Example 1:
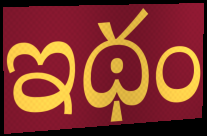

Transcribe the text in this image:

ఇథం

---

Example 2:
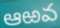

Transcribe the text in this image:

ఆఱవ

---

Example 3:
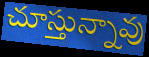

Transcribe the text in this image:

చూస్తున్నావు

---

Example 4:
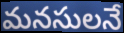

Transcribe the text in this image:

మనసులనే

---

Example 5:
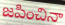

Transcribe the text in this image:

జపించినా